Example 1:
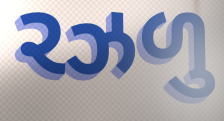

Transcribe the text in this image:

રઝળુ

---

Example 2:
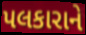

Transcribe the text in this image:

પલકારાને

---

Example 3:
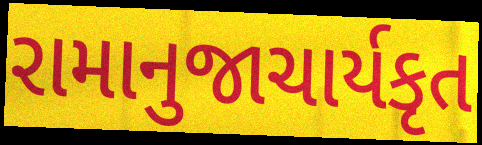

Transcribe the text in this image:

રામાનુજાચાર્યકૃત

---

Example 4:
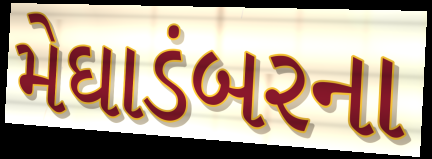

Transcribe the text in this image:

મેઘાડંબરના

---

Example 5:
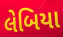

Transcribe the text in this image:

લેબિયા